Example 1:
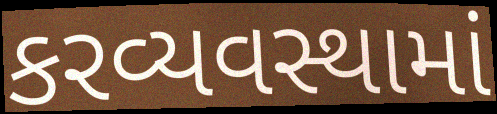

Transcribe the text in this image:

કરવ્યવસ્થામાં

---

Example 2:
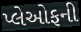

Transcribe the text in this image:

પ્લેઓફની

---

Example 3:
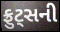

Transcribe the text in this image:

ફ્રુટ્સની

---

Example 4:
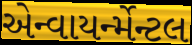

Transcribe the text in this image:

એન્વાયર્ન્મેન્ટલ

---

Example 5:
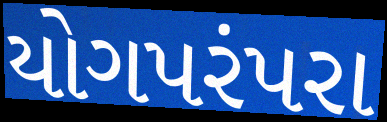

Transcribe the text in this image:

યોગપરંપરા